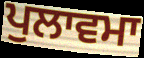
ਪੁਲਾਵਮਾ